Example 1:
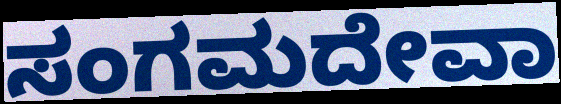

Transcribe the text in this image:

ಸಂಗಮದೇವಾ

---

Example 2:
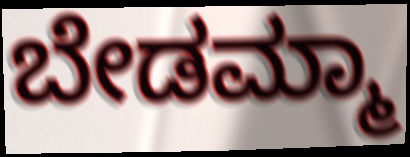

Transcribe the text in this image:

ಬೇಡಮ್ಮಾ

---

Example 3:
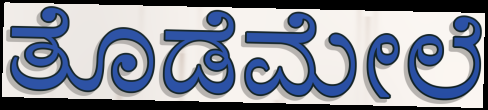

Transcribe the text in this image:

ತೊಡೆಮೇಲೆ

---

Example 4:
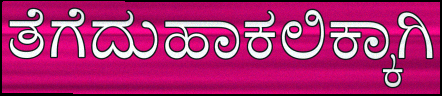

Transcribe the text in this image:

ತೆಗೆದುಹಾಕಲಿಕ್ಕಾಗಿ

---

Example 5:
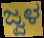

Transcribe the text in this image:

ಜ್ವಳ